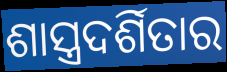
ଶାସ୍ତ୍ରଦର୍ଶିତାର